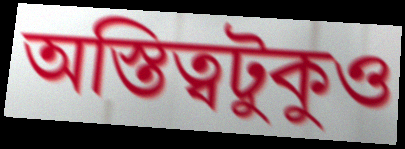
অস্তিত্বটুকুও